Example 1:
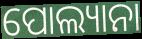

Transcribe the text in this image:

ପୋଲ୍ୟାନା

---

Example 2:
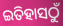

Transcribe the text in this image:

ଇତିହାସଠୁଁ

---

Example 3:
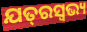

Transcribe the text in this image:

ଯତ୍‌ରସ୍ଵଭ୍ୟ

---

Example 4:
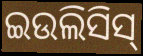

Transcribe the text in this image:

ଇଉଲିସିସ୍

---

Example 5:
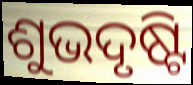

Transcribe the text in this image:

ଶୁଭଦୃଷ୍ଟି